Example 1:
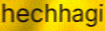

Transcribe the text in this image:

hechhagi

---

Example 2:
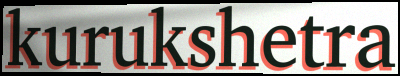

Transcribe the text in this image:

kurukshetra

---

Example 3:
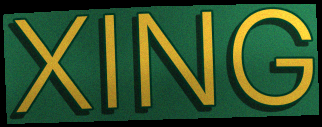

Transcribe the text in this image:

XING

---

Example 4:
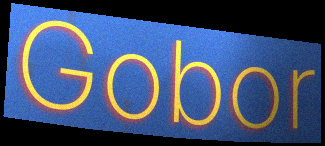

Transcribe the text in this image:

Gobor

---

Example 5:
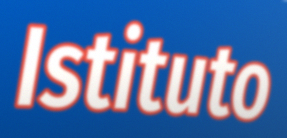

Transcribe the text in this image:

Istituto